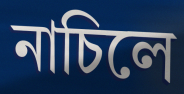
নাচিলে